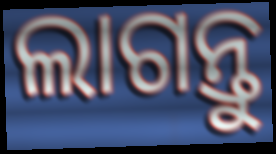
ଲାଗନ୍ତୁ